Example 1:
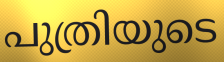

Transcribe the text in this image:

പുത്രിയുടെ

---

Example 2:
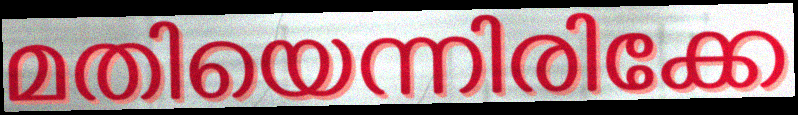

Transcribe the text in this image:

മതിയെന്നിരിക്കേ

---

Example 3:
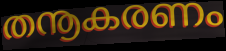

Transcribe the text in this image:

തനൂകരണം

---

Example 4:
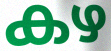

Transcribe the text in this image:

കഴ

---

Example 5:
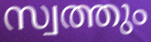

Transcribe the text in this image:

സ്വത്തും